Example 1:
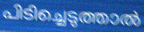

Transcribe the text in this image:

പിടിച്ചെടുത്താൽ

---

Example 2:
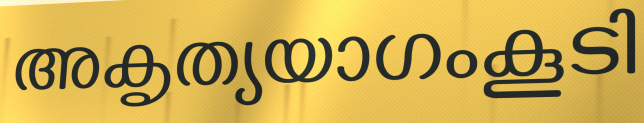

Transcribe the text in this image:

അകൃത്യയാഗംകൂടി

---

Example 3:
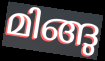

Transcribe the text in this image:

മിങ്ങു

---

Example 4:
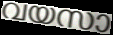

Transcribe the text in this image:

വയസാ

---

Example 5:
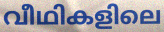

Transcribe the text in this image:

വീഥികളിലെ